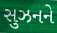
સુઝનને